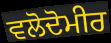
ਵਲੋਦੋਮੀਰ